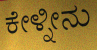
ಕೇಳ್ನೀನು